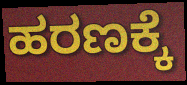
ಹರಣಕ್ಕೆ